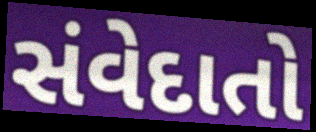
સંવેદાતો